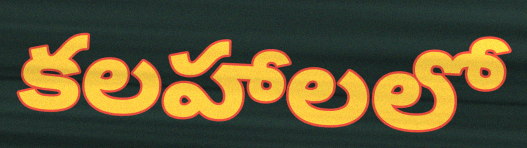
కలహాలలో